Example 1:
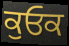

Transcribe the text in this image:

ਕੁਓਕ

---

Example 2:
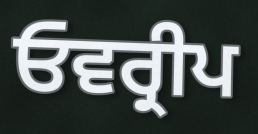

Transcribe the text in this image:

ਓਵਰ੍ਰੀਪ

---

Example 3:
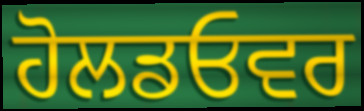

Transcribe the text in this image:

ਹੋਲਡਓਵਰ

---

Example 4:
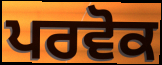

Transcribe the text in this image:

ਪਰਵੋਕ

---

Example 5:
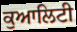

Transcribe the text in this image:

ਕੁਆਲਿਟੀ